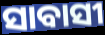
ସାବାସୀ